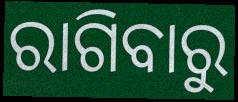
ରାଗିବାରୁ